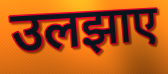
उलझाए